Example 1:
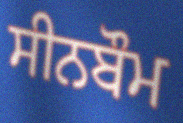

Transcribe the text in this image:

ਸੀਨਬੌਮ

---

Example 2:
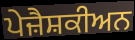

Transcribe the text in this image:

ਪੇਜ਼ੈਸ਼ਕੀਅਨ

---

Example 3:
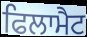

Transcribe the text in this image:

ਫਿਲਾਮੈਟ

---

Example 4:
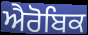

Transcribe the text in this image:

ਐਰੋਬਿਕ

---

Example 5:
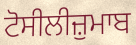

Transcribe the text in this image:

ਟੋਸੀਲੀਜ਼ੁਮਾਬ